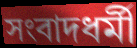
সংবাদধর্মী